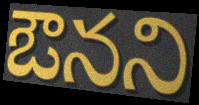
ఔనని